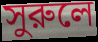
সুরুলে